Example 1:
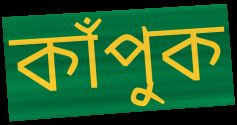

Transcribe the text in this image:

কাঁপুক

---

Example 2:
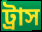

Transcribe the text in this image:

ট্রাস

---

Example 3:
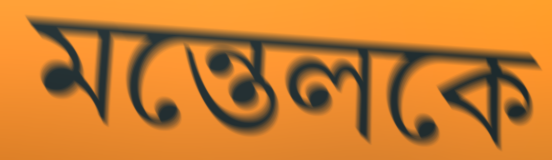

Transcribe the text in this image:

মন্তেলকে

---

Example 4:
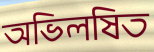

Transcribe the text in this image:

অভিলষিত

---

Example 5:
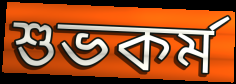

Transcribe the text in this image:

শুভকর্ম